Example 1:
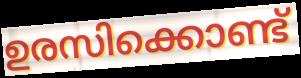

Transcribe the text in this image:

ഉരസിക്കൊണ്ട്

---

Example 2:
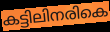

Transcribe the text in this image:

കട്ടിലിനരികെ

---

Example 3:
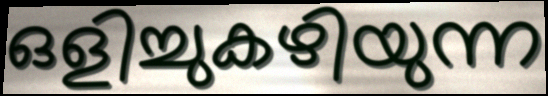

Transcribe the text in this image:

ഒളിച്ചുകഴിയുന്ന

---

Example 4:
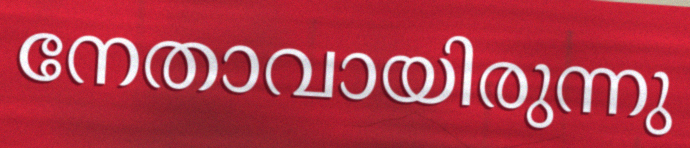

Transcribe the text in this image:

നേതാവായിരുന്നു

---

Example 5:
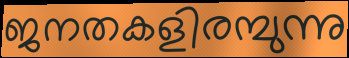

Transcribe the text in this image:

ജനതകളിരമ്പുന്നു